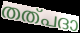
തത്പദാ